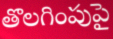
తొలగింపుపై